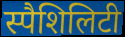
स्पैशिलिटी